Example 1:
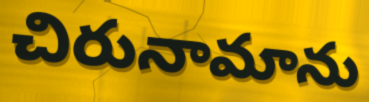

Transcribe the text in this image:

చిరునామాను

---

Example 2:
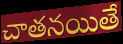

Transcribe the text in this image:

చాతనయితే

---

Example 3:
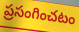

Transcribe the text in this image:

ప్రసంగించటం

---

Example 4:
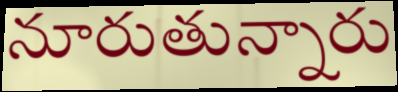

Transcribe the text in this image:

నూరుతున్నారు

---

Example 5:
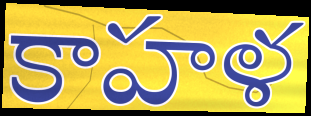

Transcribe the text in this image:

కాహళ